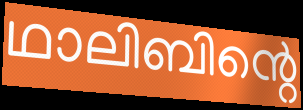
ഥാലിബിന്റെ